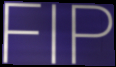
FIP